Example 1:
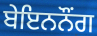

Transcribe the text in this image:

ਬੇਇਨਨੌੰਗ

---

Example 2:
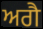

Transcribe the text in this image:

ਅਗੈ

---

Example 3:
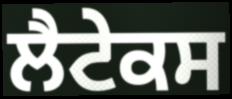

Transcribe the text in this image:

ਲੈਟੇਕਸ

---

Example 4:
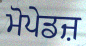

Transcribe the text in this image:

ਮੋਪੇਡਜ਼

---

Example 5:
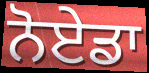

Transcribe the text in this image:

ਨੋਏਡਾ